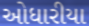
ઓધારીયા